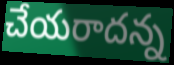
చేయరాదన్న